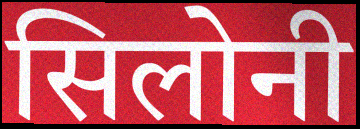
सिलोनी